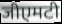
जीएमटी